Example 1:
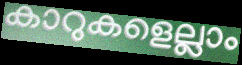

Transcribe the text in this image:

കാറുകളെല്ലാം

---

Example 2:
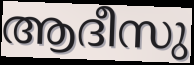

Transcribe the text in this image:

ആദീസു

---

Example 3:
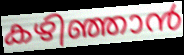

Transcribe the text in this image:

കഴിഞ്ഞാൻ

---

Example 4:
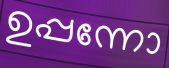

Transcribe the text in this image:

ഉപ്പന്നോ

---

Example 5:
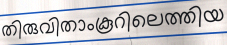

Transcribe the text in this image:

തിരുവിതാംകൂറിലെത്തിയ